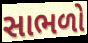
સાભળો